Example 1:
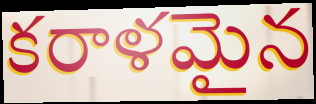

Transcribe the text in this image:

కరాళమైన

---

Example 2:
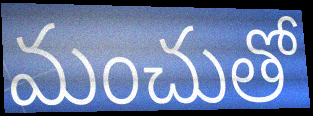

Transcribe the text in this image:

మంచుతో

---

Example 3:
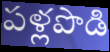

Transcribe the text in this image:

పళ్లపొడి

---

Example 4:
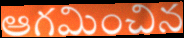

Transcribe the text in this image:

ఆగమించిన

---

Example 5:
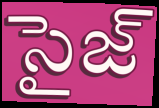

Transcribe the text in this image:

సైజ్